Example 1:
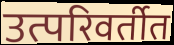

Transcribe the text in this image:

उत्परिवर्तीत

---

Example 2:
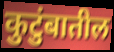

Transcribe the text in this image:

कुटुंबातील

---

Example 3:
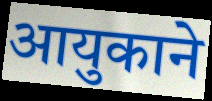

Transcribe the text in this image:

आयुकाने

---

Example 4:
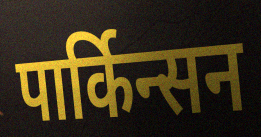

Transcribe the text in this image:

पार्किन्सन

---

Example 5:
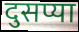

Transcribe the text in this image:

दुसप्या